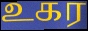
உகர